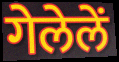
गेलेलें